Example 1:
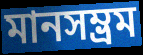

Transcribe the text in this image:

মানসম্ভ্রম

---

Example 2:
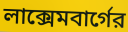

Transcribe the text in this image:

লাক্সেমবার্গের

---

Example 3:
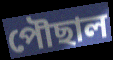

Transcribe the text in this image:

পৌছাল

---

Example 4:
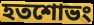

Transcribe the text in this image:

হতশোভং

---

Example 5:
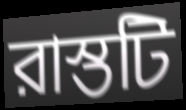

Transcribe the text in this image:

রাস্তটি